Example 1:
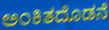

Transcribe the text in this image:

ಅಂಕಿತದೊಡನೆ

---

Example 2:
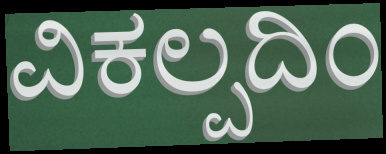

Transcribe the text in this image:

ವಿಕಲ್ಪದಿಂ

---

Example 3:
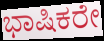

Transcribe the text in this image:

ಭಾಷಿಕರೇ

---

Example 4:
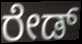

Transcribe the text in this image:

ರೇಡ್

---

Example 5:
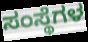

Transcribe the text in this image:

ಸಂಸ್ಥೆಗಳ